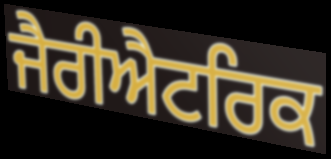
ਜੈਰੀਐਟਰਿਕ